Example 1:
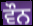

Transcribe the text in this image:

ਵੌਨ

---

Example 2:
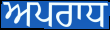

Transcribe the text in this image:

ਅਪਰਾਧ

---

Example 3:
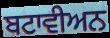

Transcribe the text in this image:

ਬਟਾਵੀਅਨ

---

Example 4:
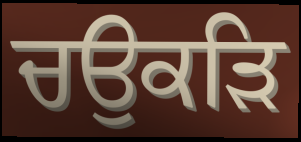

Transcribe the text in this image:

ਚਉਕੜਿ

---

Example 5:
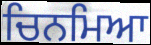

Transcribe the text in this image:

ਚਿਨਮਿਆ